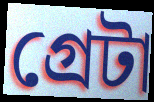
গ্রেটা